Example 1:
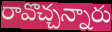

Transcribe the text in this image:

రావొచ్చన్నారు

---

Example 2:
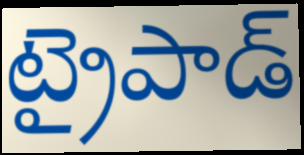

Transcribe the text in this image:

ట్రైపాడ్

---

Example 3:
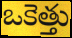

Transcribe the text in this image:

ఒకెత్తు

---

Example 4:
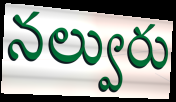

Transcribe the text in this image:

నల్వురు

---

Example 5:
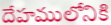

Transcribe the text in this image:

దేహములోనికి